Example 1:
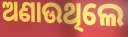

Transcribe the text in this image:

ଅଣାଉଥିଲେ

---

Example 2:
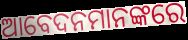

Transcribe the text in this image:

ଆବେଦନମାନଙ୍କରେ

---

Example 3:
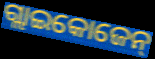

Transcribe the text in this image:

ଗ୍ଲାଇକୋଜେନ୍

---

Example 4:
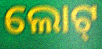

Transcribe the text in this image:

ଲୋଟ୍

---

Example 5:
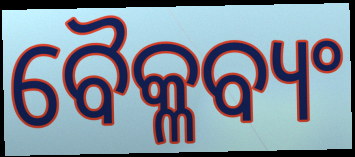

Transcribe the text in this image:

ବୈକ୍ଳବ୍ୟଂ